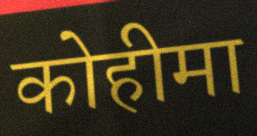
कोहीमा